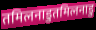
तमिलनाडुतमिलनाडु